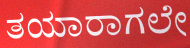
ತಯಾರಾಗಲೇ